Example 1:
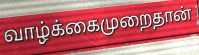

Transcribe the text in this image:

வாழ்க்கைமுறைதான்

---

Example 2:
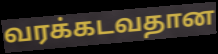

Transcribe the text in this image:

வரக்கடவதான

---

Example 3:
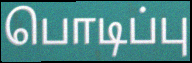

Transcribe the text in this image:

பொடிப்பு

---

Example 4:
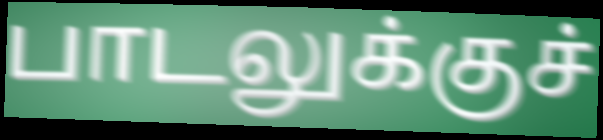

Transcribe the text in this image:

பாடலுக்குச்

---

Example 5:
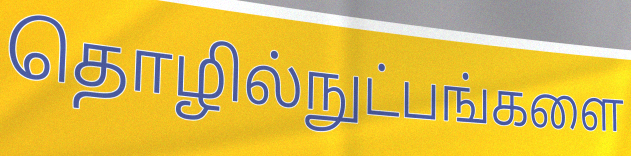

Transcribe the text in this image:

தொழில்நுட்பங்களை